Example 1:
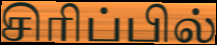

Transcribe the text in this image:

சிரிப்பில்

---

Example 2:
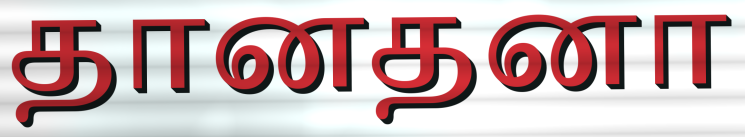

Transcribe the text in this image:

தானதனா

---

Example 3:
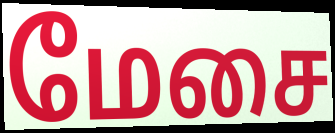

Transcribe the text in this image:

மேசை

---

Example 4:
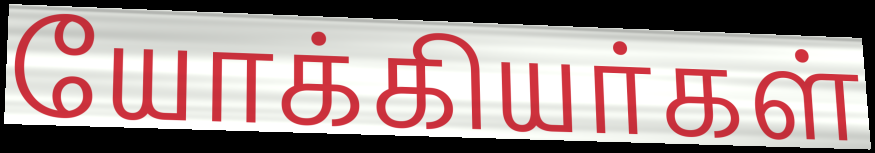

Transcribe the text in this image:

யோக்கியர்கள்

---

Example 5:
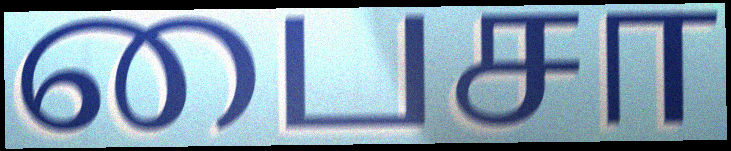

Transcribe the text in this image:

பைசா